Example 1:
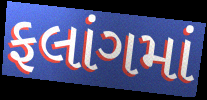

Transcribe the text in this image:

ફલાંગમાં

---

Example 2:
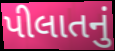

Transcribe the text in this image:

પીલાતનું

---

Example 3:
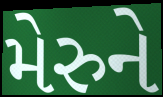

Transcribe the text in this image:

મેરુને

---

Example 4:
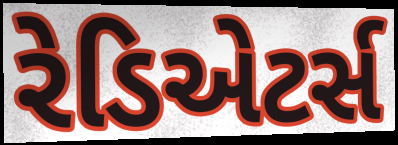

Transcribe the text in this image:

રેડિએટર્સ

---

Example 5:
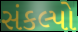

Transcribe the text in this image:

સંકલ્પો